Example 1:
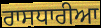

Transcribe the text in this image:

ਰਾਸਧਾਰੀਆ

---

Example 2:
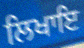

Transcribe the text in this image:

ਲਿਖਾਇ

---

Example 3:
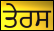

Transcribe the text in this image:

ਤੇਰਸ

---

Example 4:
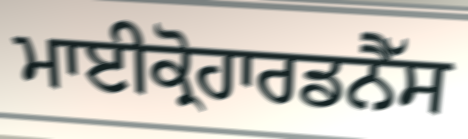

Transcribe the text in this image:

ਮਾਈਕ੍ਰੋਹਾਰਡਨੈੱਸ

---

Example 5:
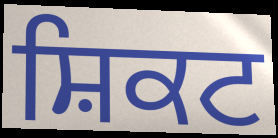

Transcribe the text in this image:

ਸ਼ਿਕਟ